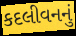
કદલીવનનું